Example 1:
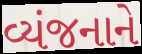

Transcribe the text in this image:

વ્યંજનાને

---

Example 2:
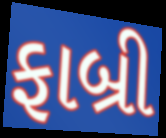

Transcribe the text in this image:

ફાબ્રી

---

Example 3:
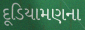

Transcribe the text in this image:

દૂડિયામણના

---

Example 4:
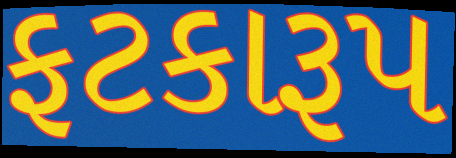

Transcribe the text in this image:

ફટકારૂપ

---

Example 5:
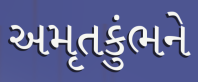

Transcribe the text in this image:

અમૃતકુંભને